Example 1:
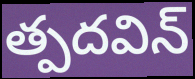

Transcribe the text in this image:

త్పదవిన్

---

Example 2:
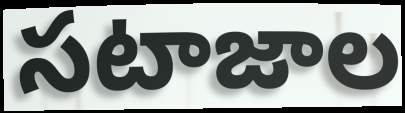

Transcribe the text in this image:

సటాజాల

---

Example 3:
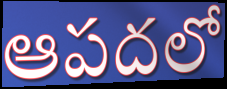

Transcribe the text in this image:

ఆపదలో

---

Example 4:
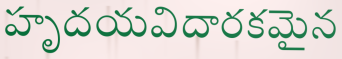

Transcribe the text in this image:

హృదయవిదారకమైన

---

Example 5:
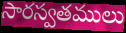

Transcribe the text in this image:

సారస్వతములు